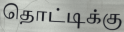
தொட்டிக்கு